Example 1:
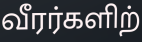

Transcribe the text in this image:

வீரர்களிற்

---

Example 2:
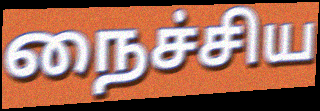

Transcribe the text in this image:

நைச்சிய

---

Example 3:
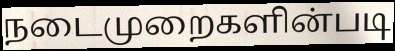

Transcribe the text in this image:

நடைமுறைகளின்படி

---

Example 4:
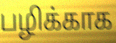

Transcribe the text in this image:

பழிக்காக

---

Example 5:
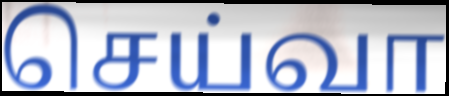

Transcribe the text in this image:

செய்வா